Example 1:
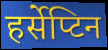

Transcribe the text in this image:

हर्सेप्टिन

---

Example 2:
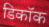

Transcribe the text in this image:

डिकॉक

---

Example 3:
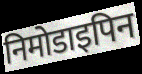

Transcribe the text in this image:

निमोडाइपिन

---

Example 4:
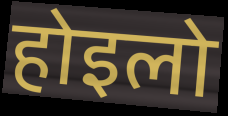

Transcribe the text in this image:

होइलो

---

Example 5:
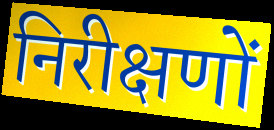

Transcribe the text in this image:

निरीक्षणों